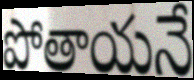
పోతాయనే